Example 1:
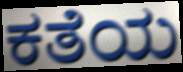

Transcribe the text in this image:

ಕತೆಯ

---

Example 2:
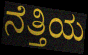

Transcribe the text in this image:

ನೆತ್ತಿಯ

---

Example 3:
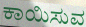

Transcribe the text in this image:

ಕಾಯಿಸುವ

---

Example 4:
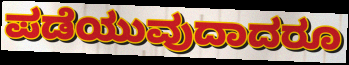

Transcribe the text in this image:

ಪಡೆಯುವುದಾದರೂ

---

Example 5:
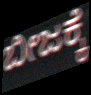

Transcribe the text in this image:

ಬೀಜಕ್ಕೆ